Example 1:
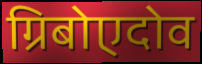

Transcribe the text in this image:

ग्रिबोएदोव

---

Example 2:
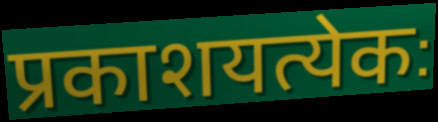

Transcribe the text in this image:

प्रकाशयत्येकः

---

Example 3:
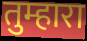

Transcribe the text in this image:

तुम्‍हारा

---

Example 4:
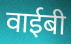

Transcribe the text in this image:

वाईबी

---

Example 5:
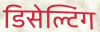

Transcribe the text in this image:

डिसेल्टिंग